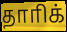
தாரிக்